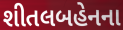
શીતલબહેનના